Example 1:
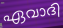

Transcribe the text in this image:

ഏവാദി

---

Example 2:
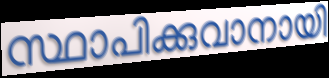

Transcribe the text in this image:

സ്ഥാപിക്കുവാനായി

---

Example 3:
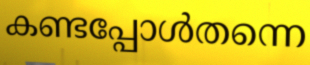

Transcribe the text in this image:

കണ്ടപ്പോൾതന്നെ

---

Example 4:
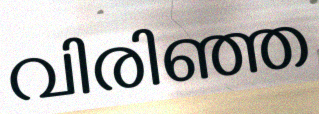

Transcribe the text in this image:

വിരിഞ്ഞ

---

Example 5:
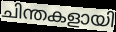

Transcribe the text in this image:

ചിന്തകളായി